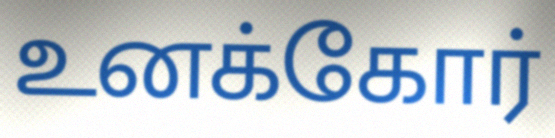
உனக்கோர்